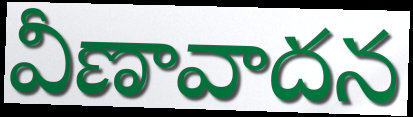
వీణావాదన